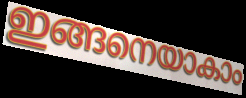
ഇങ്ങനെയാകാം